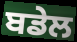
ਬਡੇਲ